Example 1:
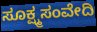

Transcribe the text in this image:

ಸೂಕ್ಷ್ಮಸಂವೇದಿ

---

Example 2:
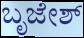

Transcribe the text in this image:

ಬೃಜೇಶ್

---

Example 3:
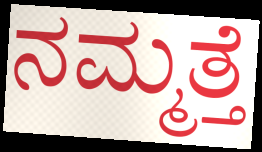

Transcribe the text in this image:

ನಮ್ಮತ್ತೆ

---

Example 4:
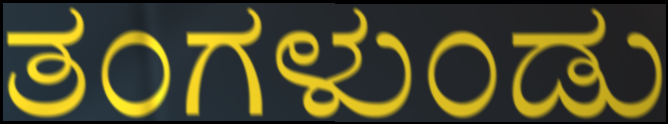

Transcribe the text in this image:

ತಂಗಳುಂಡು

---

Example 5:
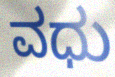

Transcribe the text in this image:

ವಧು